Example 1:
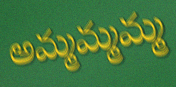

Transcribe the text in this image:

అమ్మమ్మమ్మ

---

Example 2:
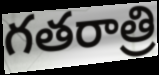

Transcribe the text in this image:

గతరాత్రి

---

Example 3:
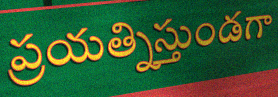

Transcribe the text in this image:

ప్రయత్నిస్తుండగా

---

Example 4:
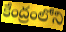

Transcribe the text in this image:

కేంద్రంలోని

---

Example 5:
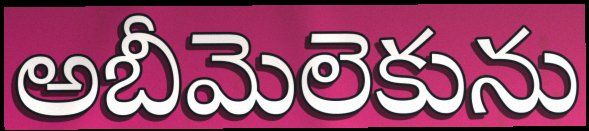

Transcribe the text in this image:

అబీమెలెకును